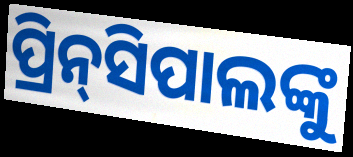
ପ୍ରିନ୍‌ସିପାଲଙ୍କୁ